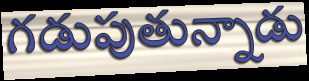
గడుపుతున్నాడు